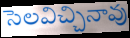
సెలవిచ్చినావు